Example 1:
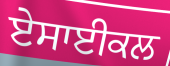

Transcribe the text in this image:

ਏਸਾਈਕਲ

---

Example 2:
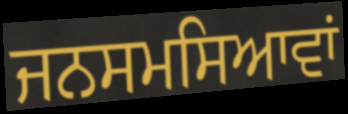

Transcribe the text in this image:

ਜਨਸਮਸਿਆਵਾਂ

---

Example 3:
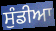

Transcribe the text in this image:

ਸੁੰਡੀਆ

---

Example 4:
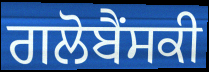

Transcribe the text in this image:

ਗਲੋਬੈਂਸਕੀ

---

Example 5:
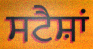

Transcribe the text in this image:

ਸਟੈਸ਼ਾਂ